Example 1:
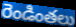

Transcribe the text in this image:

రెండింతలు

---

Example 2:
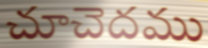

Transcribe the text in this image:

చూచెదము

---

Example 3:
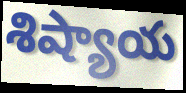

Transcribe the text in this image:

శిష్యాయ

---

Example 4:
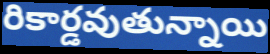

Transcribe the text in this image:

రికార్డవుతున్నాయి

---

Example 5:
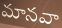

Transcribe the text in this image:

మానవా